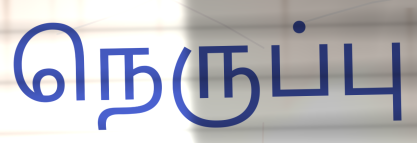
நெருப்பு